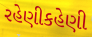
રહેણીકહેણી